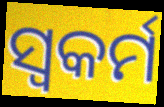
ସ୍ଵକର୍ମ